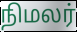
நிமலர்